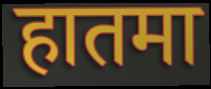
हातमा